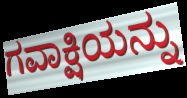
ಗವಾಕ್ಷಿಯನ್ನು